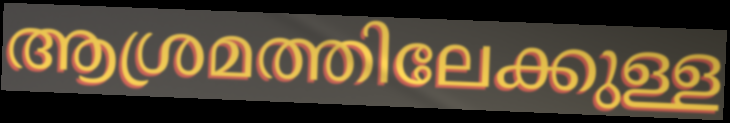
ആശ്രമത്തിലേക്കുള്ള